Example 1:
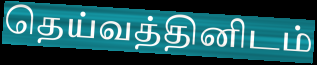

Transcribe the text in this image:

தெய்வத்தினிடம்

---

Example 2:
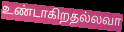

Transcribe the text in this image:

உண்டாகிறதல்லவா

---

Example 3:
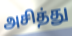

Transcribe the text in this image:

அசித்து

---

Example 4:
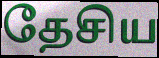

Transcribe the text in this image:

தேசிய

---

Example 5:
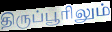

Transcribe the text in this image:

திருப்பூரிலும்